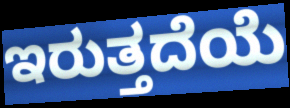
ಇರುತ್ತದೆಯೆ